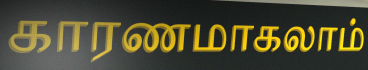
காரணமாகலாம்